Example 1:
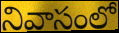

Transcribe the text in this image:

నివాసంలో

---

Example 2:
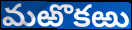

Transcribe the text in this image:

మఱొకఱు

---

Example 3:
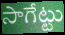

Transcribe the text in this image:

సాగేట్టు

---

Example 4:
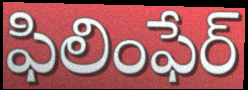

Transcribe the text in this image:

ఫిలింఫేర్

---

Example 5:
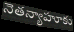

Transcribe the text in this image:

నెతన్యాహూకు